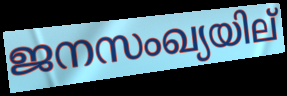
ജനസംഖ്യയില്